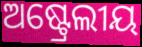
ଅଷ୍ଟ୍ରେଲୀୟ